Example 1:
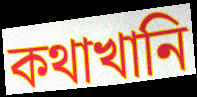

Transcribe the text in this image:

কথাখানি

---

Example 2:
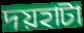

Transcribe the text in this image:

দয়হাটা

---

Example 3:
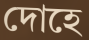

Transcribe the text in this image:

দোহে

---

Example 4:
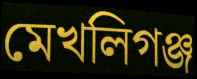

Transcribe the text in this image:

মেখলিগঞ্জ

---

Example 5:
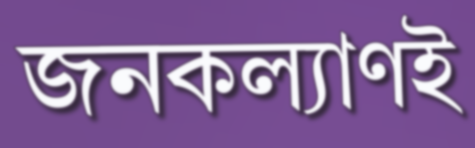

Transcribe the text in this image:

জনকল্যাণই